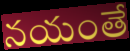
నయంతే